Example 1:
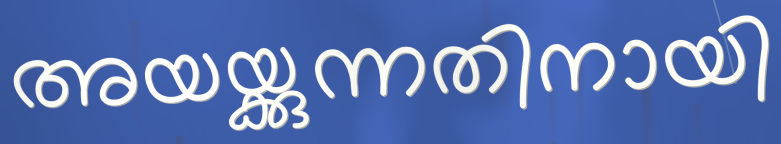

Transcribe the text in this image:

അയയ്ക്കുന്നതിനായി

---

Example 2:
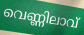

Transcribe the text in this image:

വെണ്ണിലാവ്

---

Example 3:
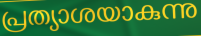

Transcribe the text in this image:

പ്രത്യാശയാകുന്നു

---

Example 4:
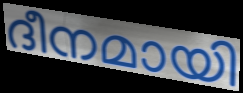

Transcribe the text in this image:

ദീനമായി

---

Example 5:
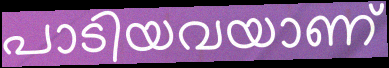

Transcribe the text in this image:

പാടിയവയാണ്